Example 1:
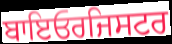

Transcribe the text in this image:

ਬਾਇਓਰਜਿਸਟਰ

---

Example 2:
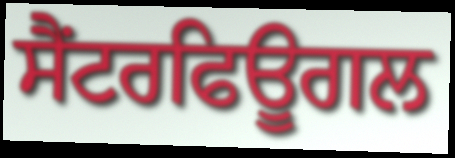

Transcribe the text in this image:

ਸੈਂਟਰਫਿਊਗਲ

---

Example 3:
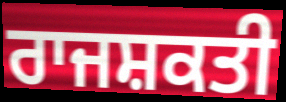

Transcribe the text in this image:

ਰਾਜਸ਼ਕਤੀ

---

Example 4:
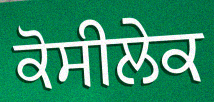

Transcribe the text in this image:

ਕੋਸੀਲੇਕ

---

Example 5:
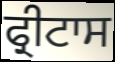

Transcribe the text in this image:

ਫ੍ਰੀਟਾਸ